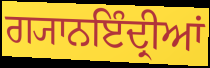
ਗ੍ਯਾਨਇੰਦ੍ਰੀਆਂ